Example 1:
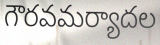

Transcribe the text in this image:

గౌరవమర్యాదల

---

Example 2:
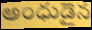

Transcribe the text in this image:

అంధుడైన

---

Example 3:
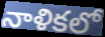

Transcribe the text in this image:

నాళికలో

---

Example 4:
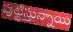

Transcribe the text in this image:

పుట్టిస్తున్నాయి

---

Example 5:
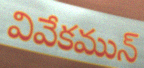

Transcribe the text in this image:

వివేకమున్